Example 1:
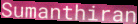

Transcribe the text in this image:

Sumanthiran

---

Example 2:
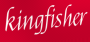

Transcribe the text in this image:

kingfisher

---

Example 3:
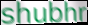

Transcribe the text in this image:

shubhr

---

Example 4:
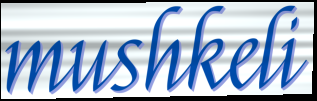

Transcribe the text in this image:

mushkeli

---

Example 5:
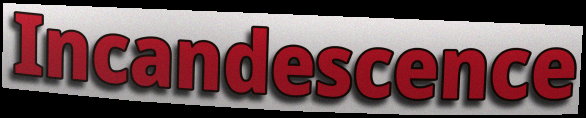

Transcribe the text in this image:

Incandescence